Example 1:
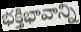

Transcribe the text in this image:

భక్తిభావాన్ని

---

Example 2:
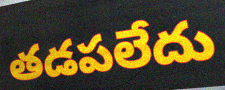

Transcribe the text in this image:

తడపలేదు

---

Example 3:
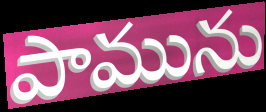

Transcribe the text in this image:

పామును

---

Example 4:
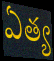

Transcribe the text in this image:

ఏత్య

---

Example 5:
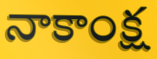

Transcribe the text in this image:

నాకాంక్ష